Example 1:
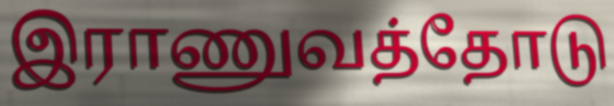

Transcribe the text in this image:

இராணுவத்தோடு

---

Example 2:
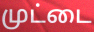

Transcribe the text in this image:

முட்டை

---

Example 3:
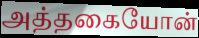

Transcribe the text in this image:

அத்தகையோன்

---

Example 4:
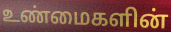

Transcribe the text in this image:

உண்மைகளின்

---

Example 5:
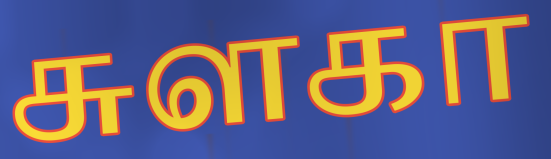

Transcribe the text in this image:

சுளகா